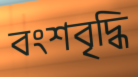
বংশবৃদ্ধি